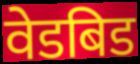
वेडबिड